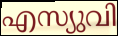
എസ്യുവി